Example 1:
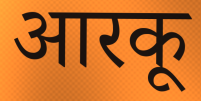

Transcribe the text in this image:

आरकू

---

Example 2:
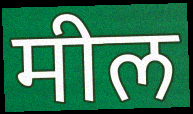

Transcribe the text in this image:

मील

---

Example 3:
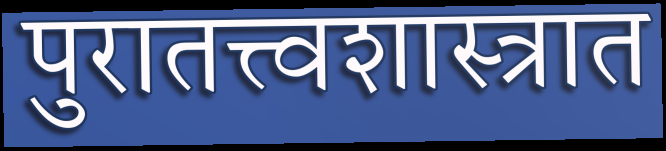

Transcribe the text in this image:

पुरातत्त्वशास्त्रात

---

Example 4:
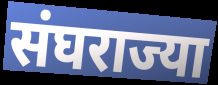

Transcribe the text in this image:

संघराज्या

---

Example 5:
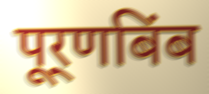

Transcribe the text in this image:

पूर्णबिंब